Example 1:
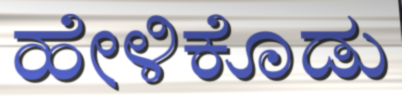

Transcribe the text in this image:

ಹೇಳಿಕೊಡು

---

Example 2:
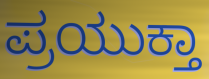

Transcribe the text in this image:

ಪ್ರಯುಕ್ತಾ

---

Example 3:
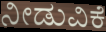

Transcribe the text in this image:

ನೀಡುವಿಕೆ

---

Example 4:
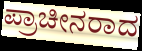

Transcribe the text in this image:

ಪ್ರಾಚೀನರಾದ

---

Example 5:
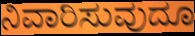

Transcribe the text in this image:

ನಿವಾರಿಸುವುದೂ